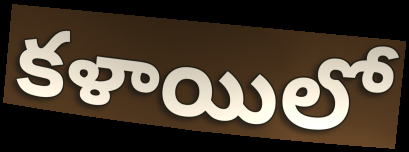
కళాయిలో